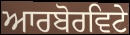
ਆਰਬੋਰਵਿਟੇ